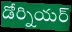
డోర్నియర్